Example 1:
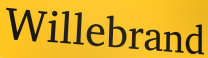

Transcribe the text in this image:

Willebrand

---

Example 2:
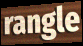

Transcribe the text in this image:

rangle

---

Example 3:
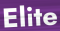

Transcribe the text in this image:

Elite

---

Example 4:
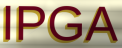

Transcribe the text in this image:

IPGA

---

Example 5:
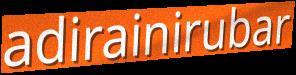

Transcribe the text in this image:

adirainirubar